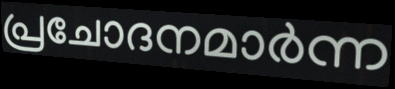
പ്രചോദനമാർന്ന